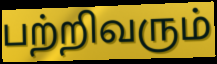
பற்றிவரும்